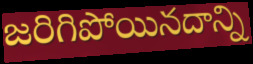
జరిగిపోయినదాన్ని